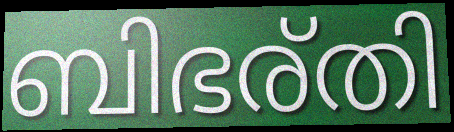
ബിഭര്തി